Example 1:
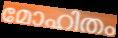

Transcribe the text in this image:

മോഹിതം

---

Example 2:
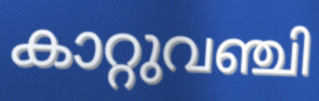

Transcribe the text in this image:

കാറ്റുവഞ്ചി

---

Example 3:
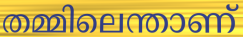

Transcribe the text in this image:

തമ്മിലെന്താണ്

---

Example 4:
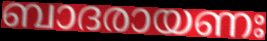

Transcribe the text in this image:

ബാദരായണഃ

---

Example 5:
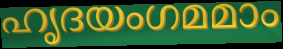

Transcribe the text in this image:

ഹൃദയംഗമമാം